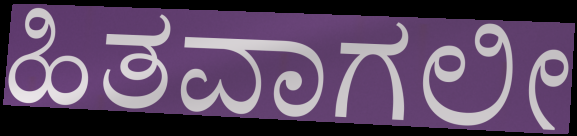
ಹಿತವಾಗಲೀ